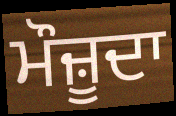
ਮੌਜ਼ੂਦਾ